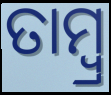
ତାମ୍ବ୍ର